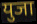
युजा